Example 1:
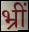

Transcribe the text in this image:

भ्रीं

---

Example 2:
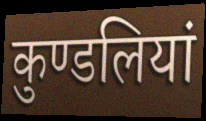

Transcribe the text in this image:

कुण्डलियां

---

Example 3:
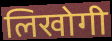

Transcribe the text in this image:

लिखोगी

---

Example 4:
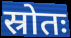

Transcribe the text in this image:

स्रोतः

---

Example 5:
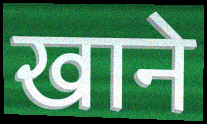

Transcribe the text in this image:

खाने